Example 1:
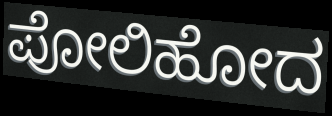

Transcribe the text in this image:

ಪೋಲಿಹೋದ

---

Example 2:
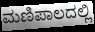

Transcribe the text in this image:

ಮಣಿಪಾಲದಲ್ಲಿ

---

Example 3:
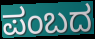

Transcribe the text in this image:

ಪಂಬದ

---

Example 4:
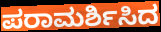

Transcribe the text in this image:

ಪರಾಮರ್ಶಿಸಿದ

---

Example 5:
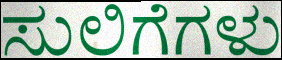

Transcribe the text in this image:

ಸುಲಿಗೆಗಳು